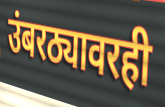
उंबरठ्यावरही